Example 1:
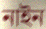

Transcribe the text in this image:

নাইন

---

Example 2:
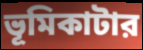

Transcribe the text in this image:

ভূমিকাটার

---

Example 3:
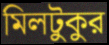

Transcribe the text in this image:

মিলটুকুর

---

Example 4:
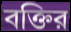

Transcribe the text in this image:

বক্তির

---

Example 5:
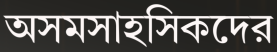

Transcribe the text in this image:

অসমসাহসিকদের